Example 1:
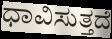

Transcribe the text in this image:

ಧಾವಿಸುತ್ತದೆ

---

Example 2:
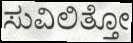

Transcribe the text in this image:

ಸುವಿಲಿತ್ತೋ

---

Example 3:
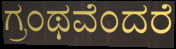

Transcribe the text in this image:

ಗ್ರಂಥವೆಂದರೆ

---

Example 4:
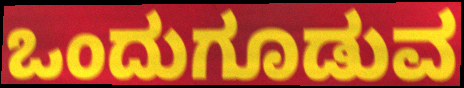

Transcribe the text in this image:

ಒಂದುಗೂಡುವ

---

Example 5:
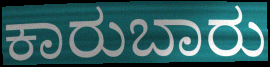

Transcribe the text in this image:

ಕಾರುಬಾರು